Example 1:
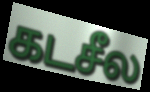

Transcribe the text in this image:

கடசீல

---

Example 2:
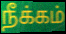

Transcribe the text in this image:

நீக்கம்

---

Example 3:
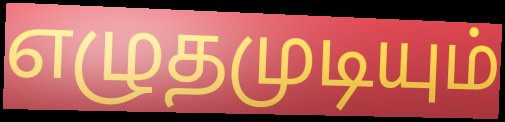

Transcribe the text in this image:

எழுதமுடியும்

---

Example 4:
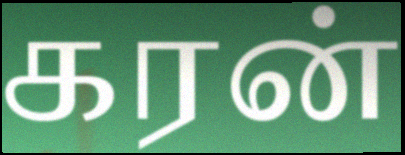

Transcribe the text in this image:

கரன்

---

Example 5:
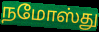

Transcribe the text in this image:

நமோஸ்து